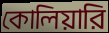
কোলিয়ারি